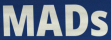
MADs